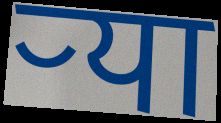
ऱ्या